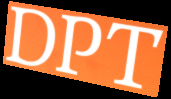
DPT